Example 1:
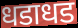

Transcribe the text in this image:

धडाधड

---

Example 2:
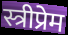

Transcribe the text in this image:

स्त्रीप्रेम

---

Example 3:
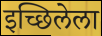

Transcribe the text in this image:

इच्छिलेला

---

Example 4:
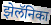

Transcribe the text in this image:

झेलॅनिका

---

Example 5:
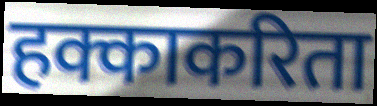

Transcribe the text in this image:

हक्काकरिता